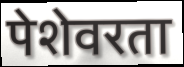
पेशेवरता